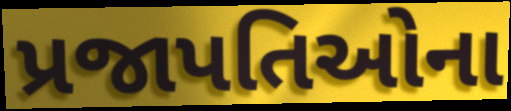
પ્રજાપતિઓના